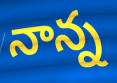
నాన్న